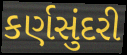
કર્ણસુંદરી